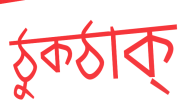
ঠুক্ঠাক্